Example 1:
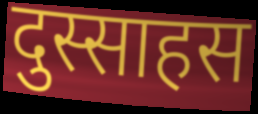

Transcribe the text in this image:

दुस्साहस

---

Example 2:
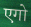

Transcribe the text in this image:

एगो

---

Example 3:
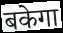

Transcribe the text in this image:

बकेगा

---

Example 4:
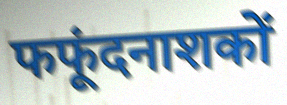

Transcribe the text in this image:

फफूंदनाशकों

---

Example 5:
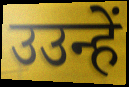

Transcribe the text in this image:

उउन्हें